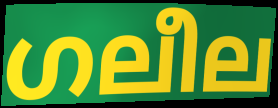
ഗലീല